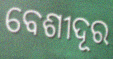
ବେଶୀଦୂର